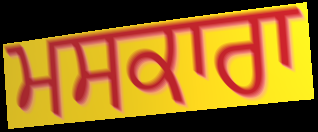
ਮਸਕਾਰਾ